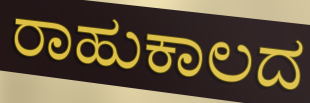
ರಾಹುಕಾಲದ